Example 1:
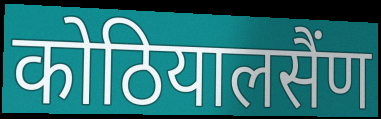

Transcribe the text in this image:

कोठियालसैंण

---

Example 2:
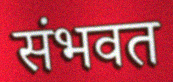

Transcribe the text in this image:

संभवत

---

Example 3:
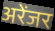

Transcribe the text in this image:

अरेंजर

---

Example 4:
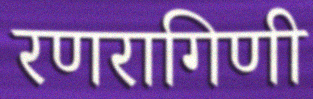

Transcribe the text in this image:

रणरागिणी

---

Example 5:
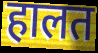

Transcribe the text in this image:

हालत